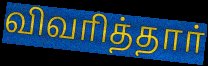
விவரித்தார்